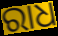
ରାଧ